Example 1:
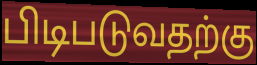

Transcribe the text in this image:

பிடிபடுவதற்கு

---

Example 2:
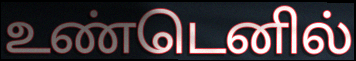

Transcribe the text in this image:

உண்டெனில்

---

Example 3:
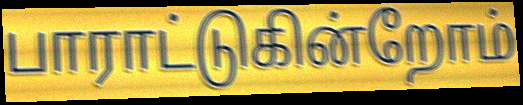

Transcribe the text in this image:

பாராட்டுகின்றோம்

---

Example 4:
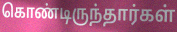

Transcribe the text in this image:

கொண்டிருந்தார்கள்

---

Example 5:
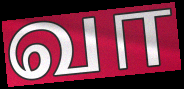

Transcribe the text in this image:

வா